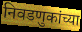
निवडणुकांच्या